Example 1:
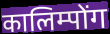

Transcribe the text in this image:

कालिम्पोंग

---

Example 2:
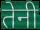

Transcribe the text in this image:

तेनी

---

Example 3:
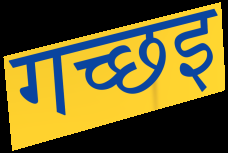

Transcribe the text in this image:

गच्छइ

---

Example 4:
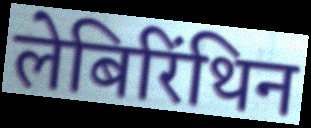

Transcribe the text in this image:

लेबिरिंथिन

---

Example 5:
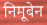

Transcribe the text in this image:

निमूबेन